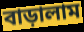
বাড়ালাম